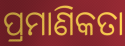
ପ୍ରମାଣିକତା